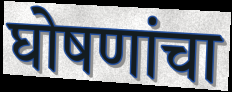
घोषणांचा